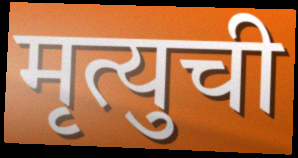
मृत्युची